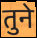
तुने